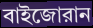
বাইজোরান